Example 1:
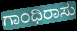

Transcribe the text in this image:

ಗಾಂಧಿರಾಸು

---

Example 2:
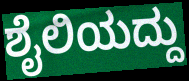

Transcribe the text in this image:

ಶೈಲಿಯದ್ದು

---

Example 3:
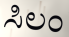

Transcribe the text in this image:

ಸಿಲಂ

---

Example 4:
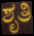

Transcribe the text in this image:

ಶೃತಿ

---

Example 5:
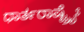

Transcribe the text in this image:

ಧಾರ್ತರಾಷ್ಟ್ರೈಃ